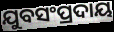
ଯୁବସଂପ୍ରଦାୟ